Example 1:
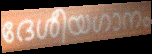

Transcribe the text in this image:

ദേശീയഗാനം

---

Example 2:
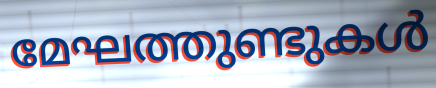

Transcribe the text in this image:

മേഘത്തുണ്ടുകൾ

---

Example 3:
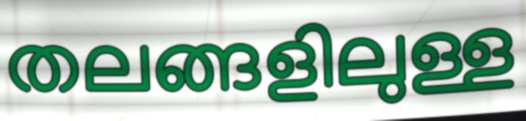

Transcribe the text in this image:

തലങ്ങളിലുള്ള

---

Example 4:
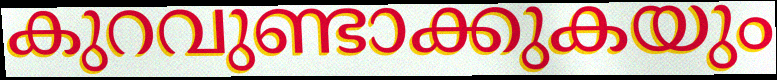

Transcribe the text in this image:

കുറവുണ്ടാക്കുകയും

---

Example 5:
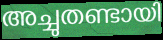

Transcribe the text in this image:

അച്ചുതണ്ടായി